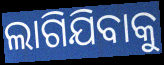
ଲାଗିଯିବାକୁ